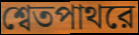
শ্বেতপাথরে